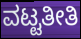
ವಟ್ಟತೀತಿ